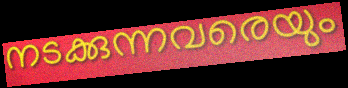
നടക്കുന്നവരെയും